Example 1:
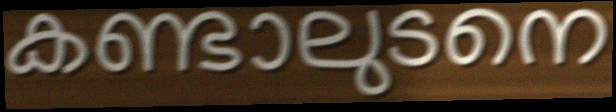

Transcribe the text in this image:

കണ്ടാലുടനെ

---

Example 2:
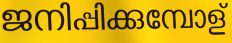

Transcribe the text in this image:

ജനിപ്പിക്കുമ്പോള്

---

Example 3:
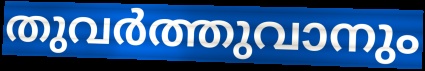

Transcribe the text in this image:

തുവർത്തുവാനും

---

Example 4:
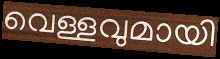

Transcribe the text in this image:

വെള്ളവുമായി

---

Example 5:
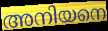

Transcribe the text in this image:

അനിയനെ